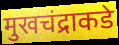
मुखचंद्राकडे